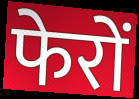
फेरों